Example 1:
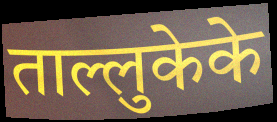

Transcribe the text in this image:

ताल्लुकेके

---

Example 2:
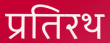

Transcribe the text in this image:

प्रतिरथ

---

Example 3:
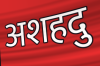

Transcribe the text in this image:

अशहदु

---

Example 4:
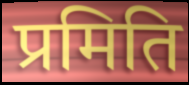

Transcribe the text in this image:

प्रमिति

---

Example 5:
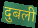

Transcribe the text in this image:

दुबली